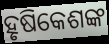
ହୃଷିକେଶଙ୍କ